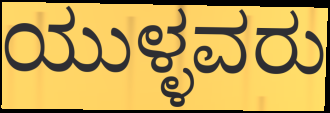
ಯುಳ್ಳವರು